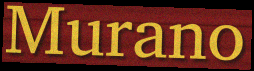
Murano